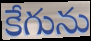
కేగును